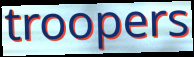
troopers